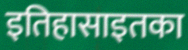
इतिहासाइतका